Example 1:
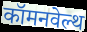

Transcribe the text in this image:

कॉमनवेल्थ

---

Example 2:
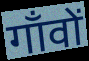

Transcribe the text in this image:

गाँवों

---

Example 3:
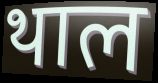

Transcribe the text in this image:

थाल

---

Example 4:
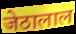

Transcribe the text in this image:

जेठालाल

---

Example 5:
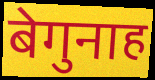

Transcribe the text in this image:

बेगुनाह